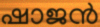
ഷാജൻ